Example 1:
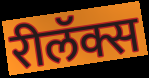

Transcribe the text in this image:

रीलॅक्स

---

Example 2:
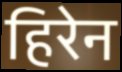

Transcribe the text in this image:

हिरेन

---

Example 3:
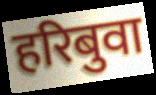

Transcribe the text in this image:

हरिबुवा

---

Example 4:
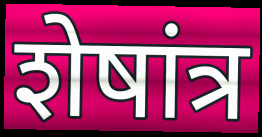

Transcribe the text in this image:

शेषांत्र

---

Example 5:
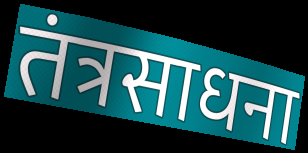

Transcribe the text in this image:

तंत्रसाधना